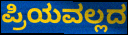
ಪ್ರಿಯವಲ್ಲದ